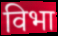
विभा